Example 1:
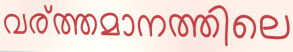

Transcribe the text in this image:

വര്ത്തമാനത്തിലെ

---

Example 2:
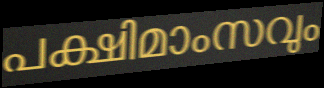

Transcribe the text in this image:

പക്ഷിമാംസവും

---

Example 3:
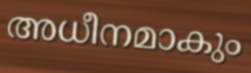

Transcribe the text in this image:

അധീനമാകും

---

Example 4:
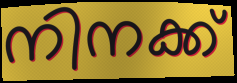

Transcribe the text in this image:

നിനക്ക്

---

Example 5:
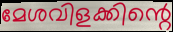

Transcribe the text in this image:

മേശവിളക്കിന്റെ